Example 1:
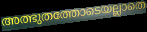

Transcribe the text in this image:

അത്ഭുതത്തോടെയല്ലാതെ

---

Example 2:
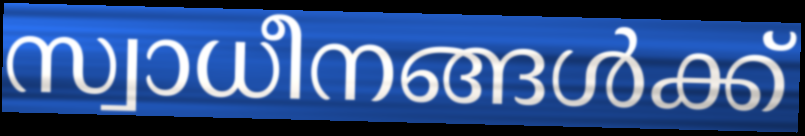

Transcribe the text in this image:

സ്വാധീനങ്ങൾക്ക്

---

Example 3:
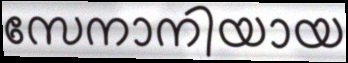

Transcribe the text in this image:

സേനാനിയായ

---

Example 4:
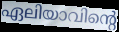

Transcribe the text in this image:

ഏലിയാവിന്റെ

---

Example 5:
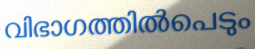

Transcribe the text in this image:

വിഭാഗത്തിൽപെടും